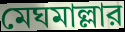
মেঘমাল্লার